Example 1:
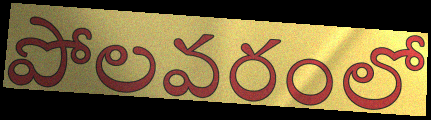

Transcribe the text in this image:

పోలవరంలో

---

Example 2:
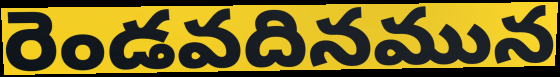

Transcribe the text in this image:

రెండవదినమున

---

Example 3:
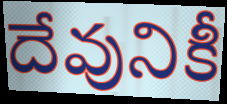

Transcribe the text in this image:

దేవునికీ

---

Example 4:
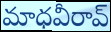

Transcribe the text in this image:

మాధవీరావ్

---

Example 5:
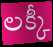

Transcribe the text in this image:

లక్కీ